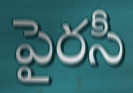
పైరసీ